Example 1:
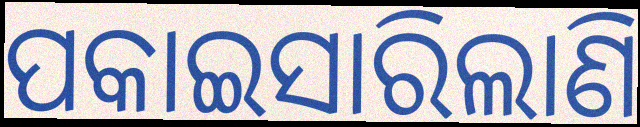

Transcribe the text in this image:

ପକାଇସାରିଲାଣି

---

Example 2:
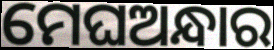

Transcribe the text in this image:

ମେଘଅନ୍ଧାର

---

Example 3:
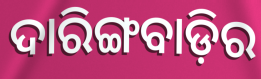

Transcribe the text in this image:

ଦାରିଙ୍ଗବାଡ଼ିର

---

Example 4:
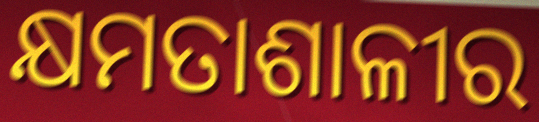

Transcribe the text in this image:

କ୍ଷମତାଶାଳୀର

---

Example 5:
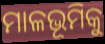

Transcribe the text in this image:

ମାଳଭୂମିକୁ